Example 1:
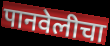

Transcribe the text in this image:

पानवेलीचा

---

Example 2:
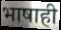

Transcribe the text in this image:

भाषाही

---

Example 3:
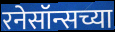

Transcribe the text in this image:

रनेसॉन्सच्या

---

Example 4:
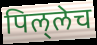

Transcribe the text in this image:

पिल्लेच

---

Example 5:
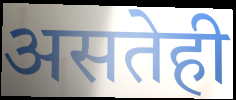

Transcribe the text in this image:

असतेही